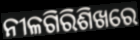
ନୀଳଗିରିଶିଖରେ